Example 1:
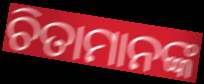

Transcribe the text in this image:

ଚିତାମାନଙ୍କ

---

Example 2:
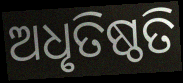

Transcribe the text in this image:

ଅଧୃତିଷ୍ଠତି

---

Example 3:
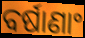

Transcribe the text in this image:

ବର୍ଷାଣାଂ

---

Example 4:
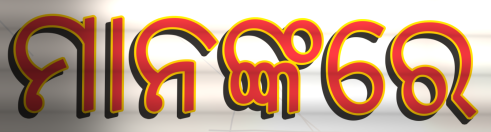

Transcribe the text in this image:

ମାନଙ୍କରେ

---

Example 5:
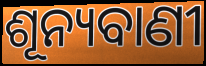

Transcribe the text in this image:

ଶୂନ୍ୟବାଣୀ